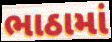
ભાઠામાં